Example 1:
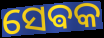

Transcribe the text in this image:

ସେଵକ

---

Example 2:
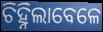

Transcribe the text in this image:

ଚିହ୍ନିଲାବେଳେ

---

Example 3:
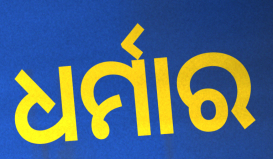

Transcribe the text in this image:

ଧର୍ମାର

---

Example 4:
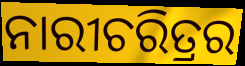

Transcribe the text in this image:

ନାରୀଚରିତ୍ରର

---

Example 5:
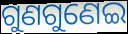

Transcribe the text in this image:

ଗୁଣଗୁଣେଇ